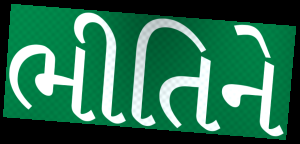
ભીતિને